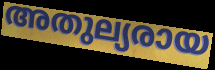
അതുല്യരായ